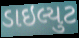
ડાઇલ્યુટ